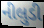
નીલુડી